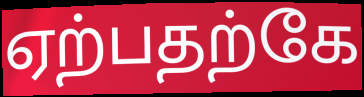
ஏற்பதற்கே